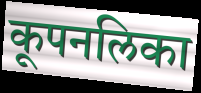
कूपनलिका